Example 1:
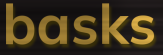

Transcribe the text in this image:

basks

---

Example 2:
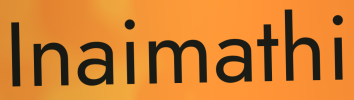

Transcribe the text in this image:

Inaimathi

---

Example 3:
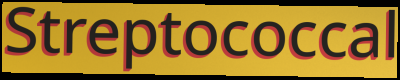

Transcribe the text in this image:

Streptococcal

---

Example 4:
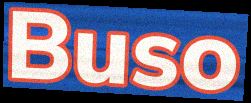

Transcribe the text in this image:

Buso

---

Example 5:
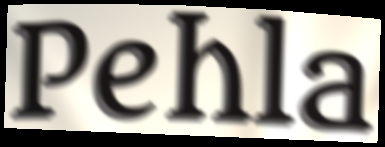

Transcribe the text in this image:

Pehla